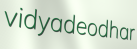
vidyadeodhar